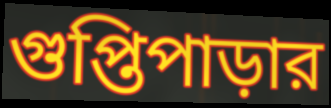
গুপ্তিপাড়ার